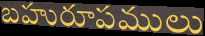
బహురూపములు